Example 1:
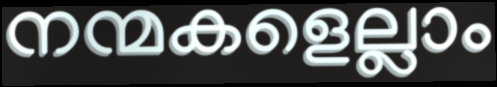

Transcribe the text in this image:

നന്മകളെല്ലാം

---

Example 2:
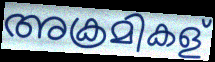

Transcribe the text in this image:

അക്രമികള്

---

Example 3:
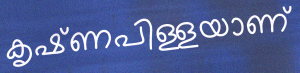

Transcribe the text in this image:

കൃഷ്‌ണപിള്ളയാണ്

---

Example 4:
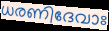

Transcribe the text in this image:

ധരണിദേവാഃ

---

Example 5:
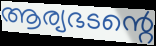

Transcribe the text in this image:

ആര്യഭടന്റെ